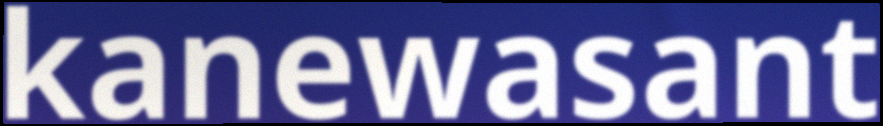
kanewasant